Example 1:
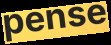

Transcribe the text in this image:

pense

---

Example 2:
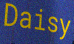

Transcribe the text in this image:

Daisy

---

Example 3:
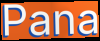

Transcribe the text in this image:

Pana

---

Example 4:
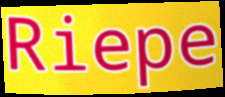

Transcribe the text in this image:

Riepe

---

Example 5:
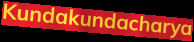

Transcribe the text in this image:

Kundakundacharya